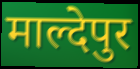
माल्देपुर